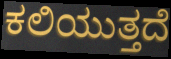
ಕಲಿಯುತ್ತದೆ